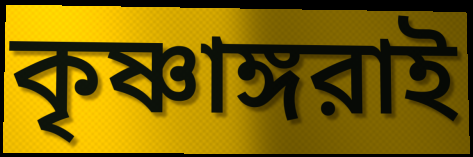
কৃষ্ণাঙ্গরাই